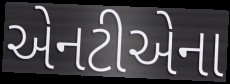
એનટીએના